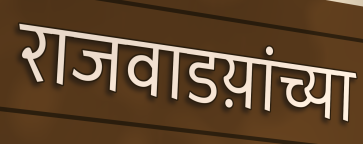
राजवाडय़ांच्या